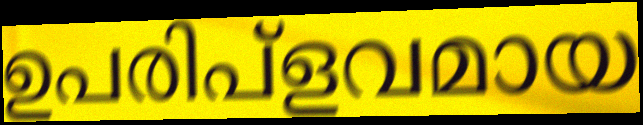
ഉപരിപ്ളവമായ